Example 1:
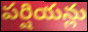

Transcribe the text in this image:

పర్షియన్లు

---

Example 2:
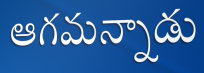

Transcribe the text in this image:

ఆగమన్నాడు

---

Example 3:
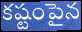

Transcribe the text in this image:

కష్టంపైన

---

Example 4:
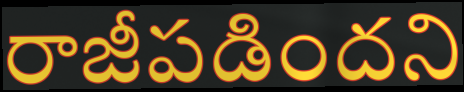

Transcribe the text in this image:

రాజీపడిందని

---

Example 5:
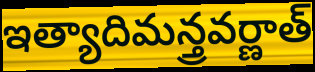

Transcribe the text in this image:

ఇత్యాదిమన్త్రవర్ణాత్